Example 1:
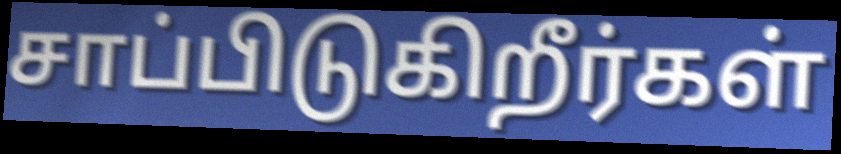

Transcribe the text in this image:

சாப்பிடுகிறீர்கள்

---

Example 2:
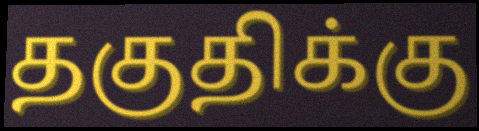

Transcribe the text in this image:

தகுதிக்கு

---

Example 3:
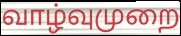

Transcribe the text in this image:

வாழ்வுமுறை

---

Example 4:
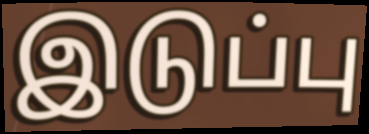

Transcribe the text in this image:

இடுப்பு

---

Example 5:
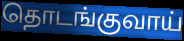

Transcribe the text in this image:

தொடங்குவாய்